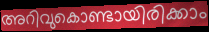
അറിവുകൊണ്ടായിരിക്കാം